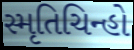
સ્મૃતિચિન્હો